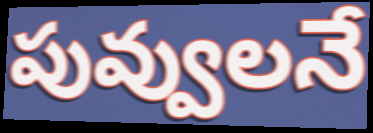
పువ్వులనే